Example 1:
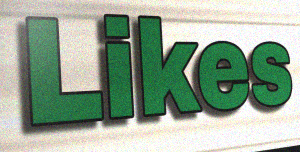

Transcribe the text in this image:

Likes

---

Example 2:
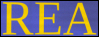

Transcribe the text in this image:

REA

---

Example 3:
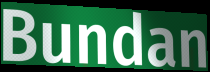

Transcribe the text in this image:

Bundan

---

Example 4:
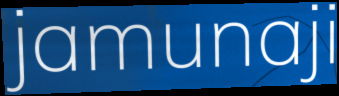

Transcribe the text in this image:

jamunaji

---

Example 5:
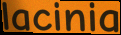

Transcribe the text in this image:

lacinia